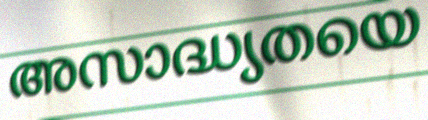
അസാദ്ധ്യതയെ